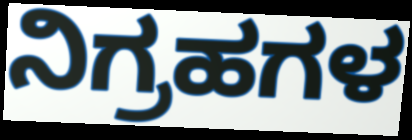
ನಿಗ್ರಹಗಳ